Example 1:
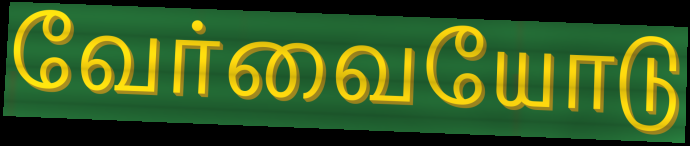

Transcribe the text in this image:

வேர்வையோடு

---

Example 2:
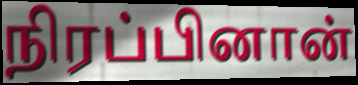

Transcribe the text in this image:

நிரப்பினான்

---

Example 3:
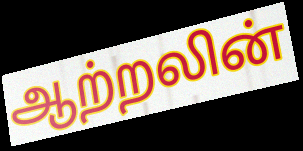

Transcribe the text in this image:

ஆற்றலின்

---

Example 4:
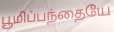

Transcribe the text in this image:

பூமிப்பந்தையே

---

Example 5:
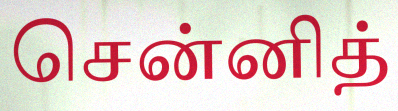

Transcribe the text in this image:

சென்னித்